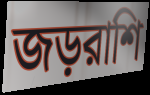
জড়রাশি